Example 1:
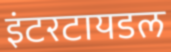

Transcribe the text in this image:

इंटरटायडल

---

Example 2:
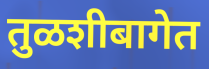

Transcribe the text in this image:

तुळशीबागेत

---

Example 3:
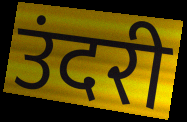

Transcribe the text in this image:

उंदरी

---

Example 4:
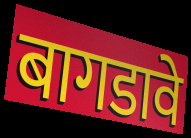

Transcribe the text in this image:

बागडावे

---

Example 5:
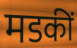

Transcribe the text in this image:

मडकीं